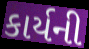
કાર્યની